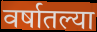
वर्षातल्या